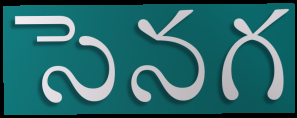
సెనగ